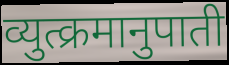
व्युत्क्रमानुपाती